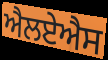
ਐਲਏਐਸ